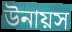
উনায়স